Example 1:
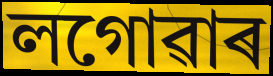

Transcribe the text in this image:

লগোৱাৰ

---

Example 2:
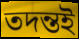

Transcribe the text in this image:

তদন্তই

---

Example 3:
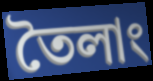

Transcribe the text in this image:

তৈলাং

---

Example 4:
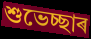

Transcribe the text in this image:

শুভেচ্ছাৰ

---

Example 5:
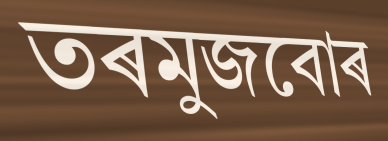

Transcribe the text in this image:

তৰমুজবোৰ